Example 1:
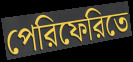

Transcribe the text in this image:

পেরিফেরিতে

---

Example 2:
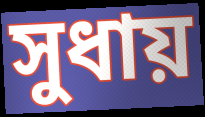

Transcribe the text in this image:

সুধায়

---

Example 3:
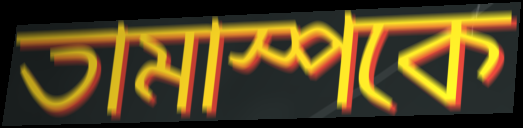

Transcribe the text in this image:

তামাস্পকে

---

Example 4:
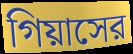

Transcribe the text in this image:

গিয়াসের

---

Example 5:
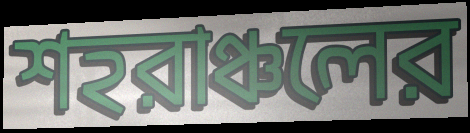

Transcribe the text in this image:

শহরাঞ্চলের